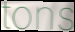
tons